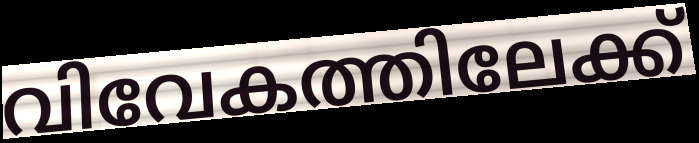
വിവേകത്തിലേക്ക്